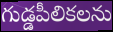
గుడ్డపీలికలను